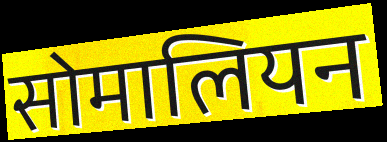
सोमालियन